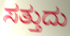
ಸತ್ತುದು